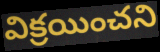
విక్రయించని